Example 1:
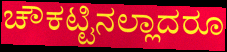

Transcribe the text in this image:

ಚೌಕಟ್ಟಿನಲ್ಲಾದರೂ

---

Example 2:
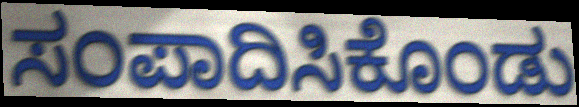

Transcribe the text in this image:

ಸಂಪಾದಿಸಿಕೊಂಡು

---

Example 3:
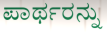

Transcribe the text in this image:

ಪಾರ್ಥರನ್ನು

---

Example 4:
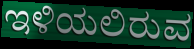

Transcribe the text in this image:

ಇಳಿಯಲಿರುವ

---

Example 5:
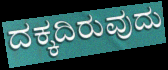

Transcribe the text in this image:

ದಕ್ಕದಿರುವುದು